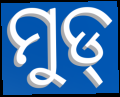
ମୁଡ୍